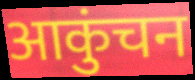
आकुंचन